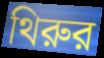
থিরুর